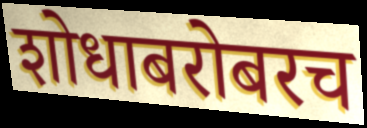
शोधाबरोबरच